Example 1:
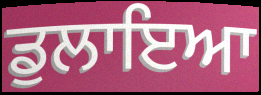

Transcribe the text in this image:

ਡੁਲਾਇਆ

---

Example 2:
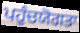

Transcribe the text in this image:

ਪਹੁੰਚਯੋਗਤਾ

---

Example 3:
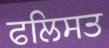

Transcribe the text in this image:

ਫਲਿਸਤ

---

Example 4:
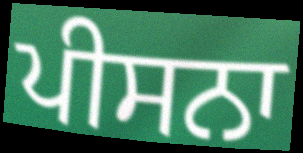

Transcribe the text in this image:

ਪੀਸਨਾ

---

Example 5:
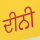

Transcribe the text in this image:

ਦੀਨੀ